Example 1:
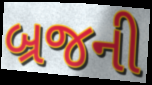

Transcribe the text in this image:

બ્રજની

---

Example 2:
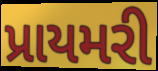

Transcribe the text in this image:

પ્રાયમરી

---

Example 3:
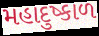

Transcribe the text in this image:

મહાદુષ્કાળ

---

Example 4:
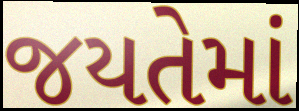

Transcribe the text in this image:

જયતેમાં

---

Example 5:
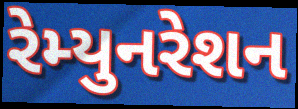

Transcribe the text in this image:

રેમ્યુનરેશન